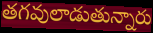
తగవులాడుతున్నారు